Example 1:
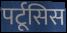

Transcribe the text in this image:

पर्टूसिस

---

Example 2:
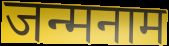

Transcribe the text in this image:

जन्मनाम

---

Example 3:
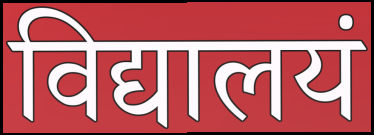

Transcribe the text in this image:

विद्यालयं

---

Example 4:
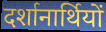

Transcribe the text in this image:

दर्शानार्थियों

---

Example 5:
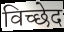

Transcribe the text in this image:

विच्छेद